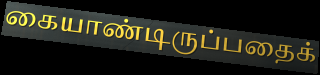
கையாண்டிருப்பதைக்